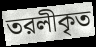
তরলীকৃত